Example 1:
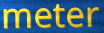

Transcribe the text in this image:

meter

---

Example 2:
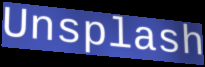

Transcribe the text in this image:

Unsplash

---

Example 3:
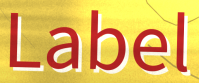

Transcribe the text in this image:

Label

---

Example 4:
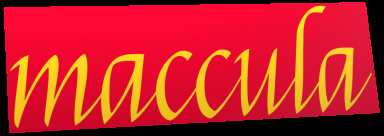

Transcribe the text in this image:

maccula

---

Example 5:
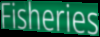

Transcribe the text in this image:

Fisheries